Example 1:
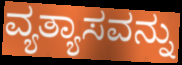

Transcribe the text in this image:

ವ್ಯತ್ಯಾಸವನ್ನು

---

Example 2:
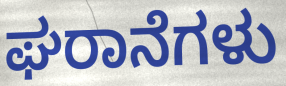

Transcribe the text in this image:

ಘರಾನೆಗಳು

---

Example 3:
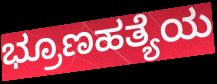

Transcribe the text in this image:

ಭ್ರೂಣಹತ್ಯೆಯ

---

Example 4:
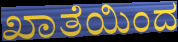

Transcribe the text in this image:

ಖಾತೆಯಿಂದ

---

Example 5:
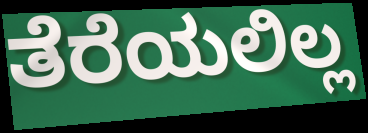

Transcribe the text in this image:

ತೆರೆಯಲಿಲ್ಲ